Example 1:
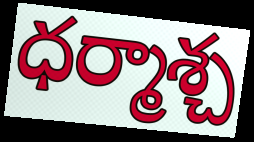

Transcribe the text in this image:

ధర్మాశ్చ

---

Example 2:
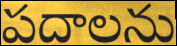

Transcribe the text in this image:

పదాలను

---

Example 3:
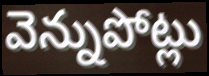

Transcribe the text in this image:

వెన్నుపోట్లు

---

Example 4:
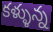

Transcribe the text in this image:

కళ్ళున్న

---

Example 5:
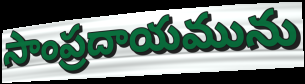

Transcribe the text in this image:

సాంప్రదాయమును